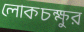
লোকচক্ষুর